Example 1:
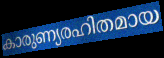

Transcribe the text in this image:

കാരുണ്യരഹിതമായ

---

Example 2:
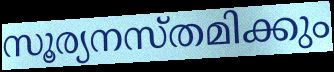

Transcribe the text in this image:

സൂര്യനസ്തമിക്കും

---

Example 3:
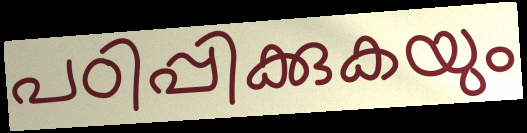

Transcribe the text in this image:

പഠിപ്പിക്കുകയും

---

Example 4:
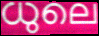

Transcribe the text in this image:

ധുലെ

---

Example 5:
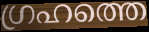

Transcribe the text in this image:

ഗ്രഹത്തെ